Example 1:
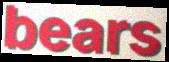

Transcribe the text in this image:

bears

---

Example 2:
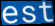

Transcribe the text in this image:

est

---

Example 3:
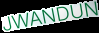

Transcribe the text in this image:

JWANDUN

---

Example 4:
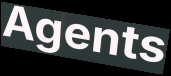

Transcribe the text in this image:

Agents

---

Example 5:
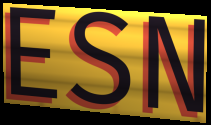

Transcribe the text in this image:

ESN